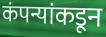
कंपन्यांकडून